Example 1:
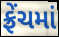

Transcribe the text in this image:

ફ્રેંચમાં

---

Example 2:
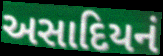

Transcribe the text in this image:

અસાદિયનં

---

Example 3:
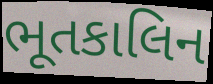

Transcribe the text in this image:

ભૂતકાલિન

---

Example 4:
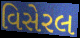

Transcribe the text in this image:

વિસેરલ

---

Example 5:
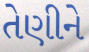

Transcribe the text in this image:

તેણીને